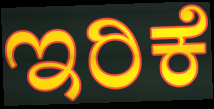
ಇರಿಕೆ